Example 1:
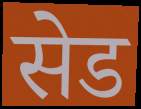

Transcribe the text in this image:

सेड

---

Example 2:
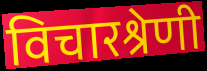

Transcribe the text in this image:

विचारश्रेणी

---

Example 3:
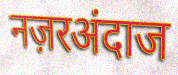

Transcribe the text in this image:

नज़रअंदाज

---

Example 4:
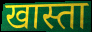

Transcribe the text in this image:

खास्ता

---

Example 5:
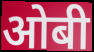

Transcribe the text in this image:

ओबी